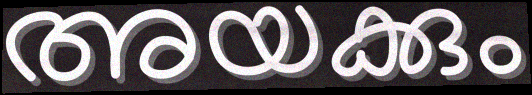
അയക്കും